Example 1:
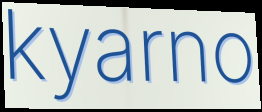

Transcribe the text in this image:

kyarno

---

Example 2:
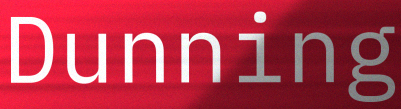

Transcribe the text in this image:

Dunning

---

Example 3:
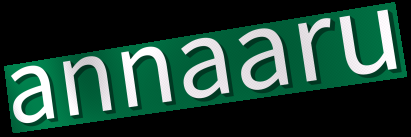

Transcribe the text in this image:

annaaru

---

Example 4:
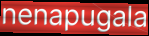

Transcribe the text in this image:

nenapugala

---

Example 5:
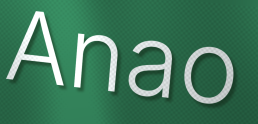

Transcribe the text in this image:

Anao